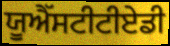
ਯੂਐੱਸਟੀਟੀਏਡੀ